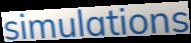
simulations